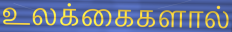
உலக்கைகளால்